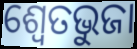
ଶ୍ଵେତଭୁଜା